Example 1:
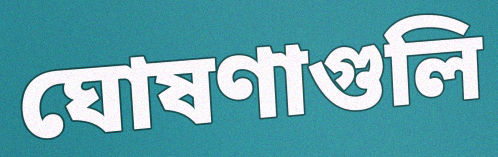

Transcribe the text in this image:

ঘোষণাগুলি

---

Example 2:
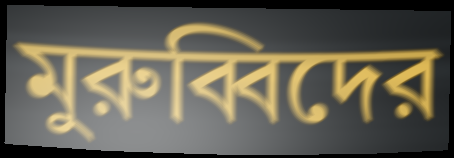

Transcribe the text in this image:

মুরুব্বিদের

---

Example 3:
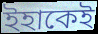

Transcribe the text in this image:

ইহাকেই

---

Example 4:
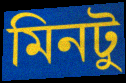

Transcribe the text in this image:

মিনটু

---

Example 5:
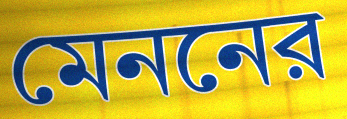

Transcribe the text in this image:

মেননের